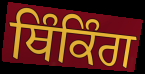
ਥਿੰਕਿੰਗ